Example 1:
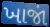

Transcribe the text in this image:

ખાજાં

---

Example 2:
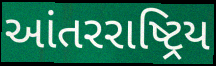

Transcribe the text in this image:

આંતરરાષ્ટ્રિય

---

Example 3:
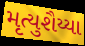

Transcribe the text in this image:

મૃત્યુશૈય્યા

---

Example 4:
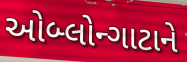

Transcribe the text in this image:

ઓબ્લોન્ગાટાને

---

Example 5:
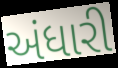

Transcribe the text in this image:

અંધારી